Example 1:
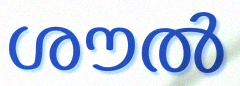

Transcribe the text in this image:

ശൗൽ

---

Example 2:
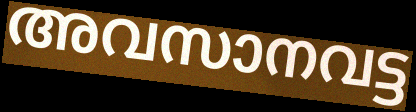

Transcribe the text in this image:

അവസാനവട്ട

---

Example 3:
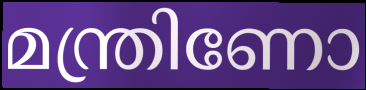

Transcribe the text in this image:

മന്ത്രിണോ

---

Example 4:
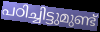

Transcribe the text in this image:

പഠിച്ചിട്ടുമുണ്ട്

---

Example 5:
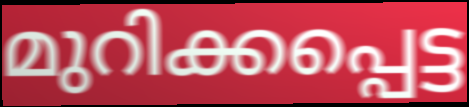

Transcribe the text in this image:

മുറിക്കപ്പെട്ട